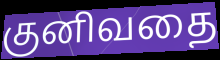
குனிவதை